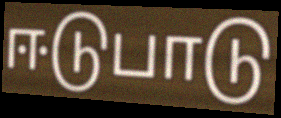
ஈடுபாடு